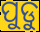
ପୁଡୁ